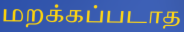
மறக்கப்படாத